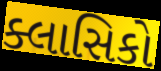
ક્લાસિકો